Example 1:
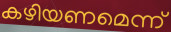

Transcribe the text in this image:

കഴിയണമെന്ന്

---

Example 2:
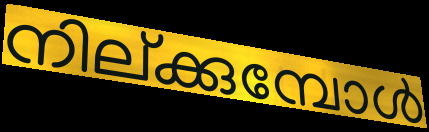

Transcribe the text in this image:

നില്ക്കുമ്പോൾ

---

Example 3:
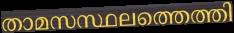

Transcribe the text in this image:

താമസസ്ഥലത്തെത്തി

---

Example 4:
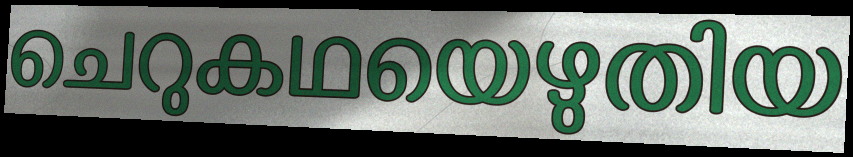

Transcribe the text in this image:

ചെറുകഥയെഴുതിയ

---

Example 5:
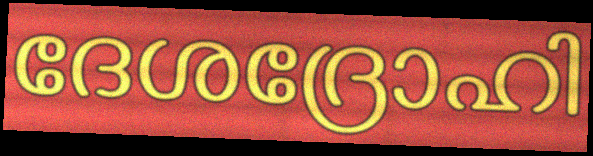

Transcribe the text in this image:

ദേശദ്രോഹി